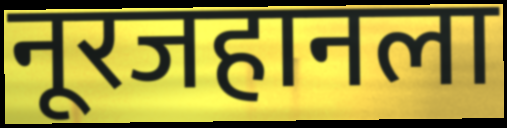
नूरजहानला